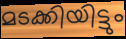
മടക്കിയിട്ടും